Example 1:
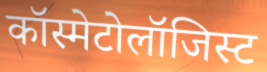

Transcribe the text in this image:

कॉस्मेटोलॉजिस्ट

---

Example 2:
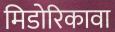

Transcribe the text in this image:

मिडोरिकावा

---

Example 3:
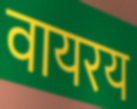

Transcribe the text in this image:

वायरय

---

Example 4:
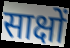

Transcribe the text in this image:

साक्षों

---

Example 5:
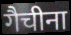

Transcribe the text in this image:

गैचीना